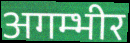
अगम्भीर